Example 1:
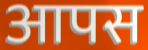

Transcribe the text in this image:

आपस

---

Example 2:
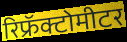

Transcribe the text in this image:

रिफ्रॅक्टोमीटर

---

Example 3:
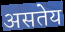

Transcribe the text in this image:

असतेय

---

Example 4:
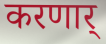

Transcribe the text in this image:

करणार्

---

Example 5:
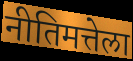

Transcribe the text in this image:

नीतिमत्तेला